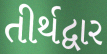
તીર્થદ્વાર